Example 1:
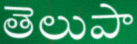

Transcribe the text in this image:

తెలుపా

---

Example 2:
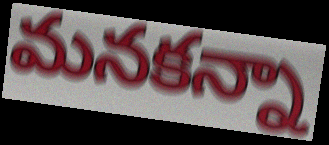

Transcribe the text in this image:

మనకన్నా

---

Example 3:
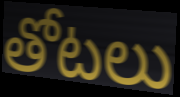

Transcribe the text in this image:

తోటలు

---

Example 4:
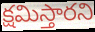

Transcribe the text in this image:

క్షమిస్తారని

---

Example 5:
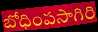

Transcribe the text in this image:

బోధింపసాగిరి